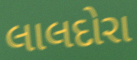
લાલદોરા